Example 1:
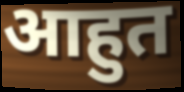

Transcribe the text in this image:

आहुत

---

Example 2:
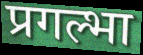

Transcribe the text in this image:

प्रगल्भा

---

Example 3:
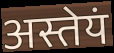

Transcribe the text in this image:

अस्तेयं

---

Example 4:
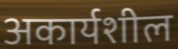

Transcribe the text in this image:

अकार्यशील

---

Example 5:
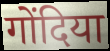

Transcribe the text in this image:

गोंदिया